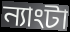
ন্যাংটা